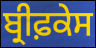
ਬ੍ਰੀਫ਼ਕੇਸ